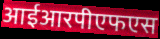
आईआरपीएफएस